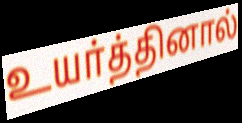
உயர்த்தினால்